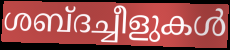
ശബ്ദച്ചീളുകൾ